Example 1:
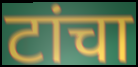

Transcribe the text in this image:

टांचा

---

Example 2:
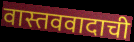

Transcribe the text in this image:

वास्तववादाची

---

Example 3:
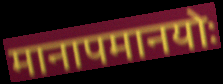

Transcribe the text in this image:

मानापमानयोः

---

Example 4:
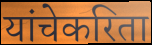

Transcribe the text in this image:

यांचेकरिता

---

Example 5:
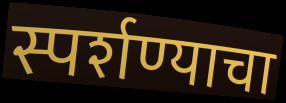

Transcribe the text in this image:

स्पर्शण्याचा